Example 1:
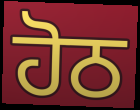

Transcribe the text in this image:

ਹੋਠ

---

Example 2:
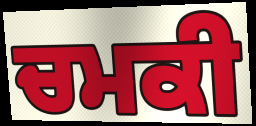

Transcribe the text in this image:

ਚਮਕੀ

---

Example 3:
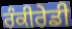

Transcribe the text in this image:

ਰੰਕੀਰੇਡੀ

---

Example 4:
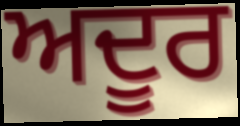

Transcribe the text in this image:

ਅਦੂਰ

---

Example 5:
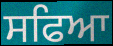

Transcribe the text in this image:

ਸਫਿਆ